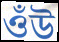
ওঁউ